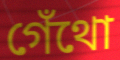
গেঁথো